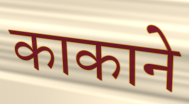
काकाने